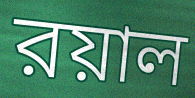
রয়াল